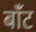
बांँट